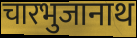
चारभुजानाथ